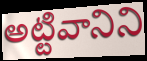
అట్టివానిని